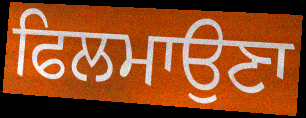
ਫਿਲਮਾਉਣਾ